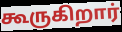
கூருகிறார்